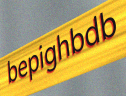
bepighbdb